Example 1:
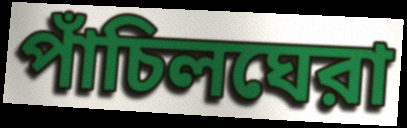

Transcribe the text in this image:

পাঁচিলঘেরা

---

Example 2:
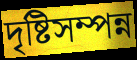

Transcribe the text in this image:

দৃষ্টিসম্পন্ন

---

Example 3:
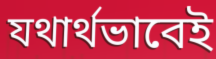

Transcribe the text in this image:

যথার্থভাবেই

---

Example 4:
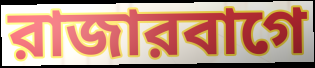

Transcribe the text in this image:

রাজারবাগে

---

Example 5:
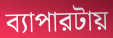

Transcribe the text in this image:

ব্যাপারটায়